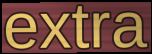
extra